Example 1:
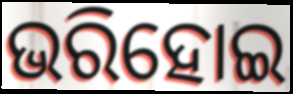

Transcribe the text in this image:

ଭରିହୋଇ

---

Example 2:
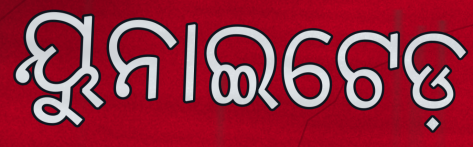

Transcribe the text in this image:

ୟୁନାଇଟେଡ଼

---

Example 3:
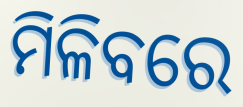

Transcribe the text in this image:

ମିଳିବରେ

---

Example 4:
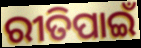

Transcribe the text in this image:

ରୀତିପାଇଁ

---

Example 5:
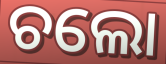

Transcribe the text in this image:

ଚଲୋ